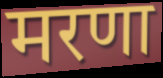
मरणा